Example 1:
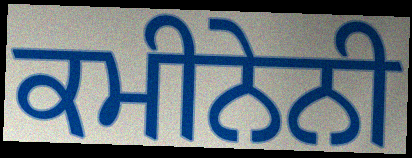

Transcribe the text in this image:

ਕਮੀਨੇਨੀ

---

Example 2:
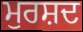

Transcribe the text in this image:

ਮੁਰਸ਼ਦ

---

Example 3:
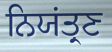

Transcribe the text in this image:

ਨਿਯਂਤ੍ਰਣ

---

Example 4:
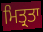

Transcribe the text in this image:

ਮਿਤ੍ਰਤਾ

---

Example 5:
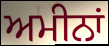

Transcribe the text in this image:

ਅਮੀਨਾਂ